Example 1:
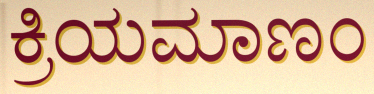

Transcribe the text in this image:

ಕ್ರಿಯಮಾಣಂ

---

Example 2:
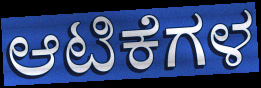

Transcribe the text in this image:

ಆಟಿಕೆಗಳ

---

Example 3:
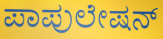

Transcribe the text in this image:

ಪಾಪುಲೇಷನ್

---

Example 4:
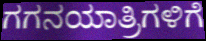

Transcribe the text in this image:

ಗಗನಯಾತ್ರಿಗಳಿಗೆ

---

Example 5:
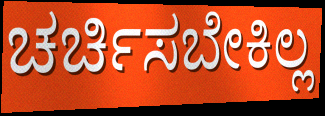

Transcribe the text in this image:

ಚರ್ಚಿಸಬೇಕಿಲ್ಲ